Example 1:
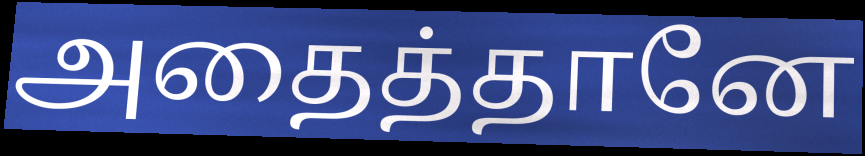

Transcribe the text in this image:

அதைத்தானே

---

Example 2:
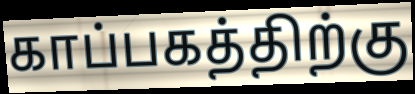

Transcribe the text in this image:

காப்பகத்திற்கு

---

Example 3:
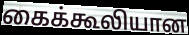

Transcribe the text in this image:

கைக்கூலியான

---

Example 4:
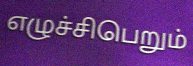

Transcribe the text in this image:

எழுச்சிபெறும்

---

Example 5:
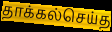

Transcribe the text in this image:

தாக்கல்செய்த